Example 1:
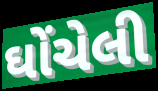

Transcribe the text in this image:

ઘોંચેલી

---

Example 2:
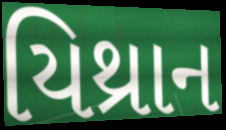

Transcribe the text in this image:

યિથ્રાન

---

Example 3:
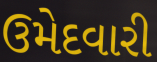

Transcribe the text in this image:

ઉમેદવારી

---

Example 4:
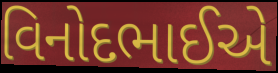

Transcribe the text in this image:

વિનોદભાઈએ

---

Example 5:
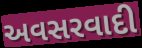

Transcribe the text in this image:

અવસરવાદી